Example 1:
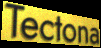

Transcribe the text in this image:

Tectona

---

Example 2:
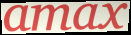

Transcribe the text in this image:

amax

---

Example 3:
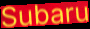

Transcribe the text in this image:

Subaru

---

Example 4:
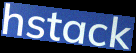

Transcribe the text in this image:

hstack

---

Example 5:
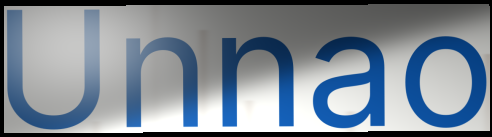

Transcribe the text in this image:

Unnao